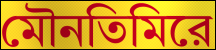
মৌনতিমিরে